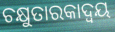
ଚକ୍ଷୁତାରକାଦ୍ଵୟ